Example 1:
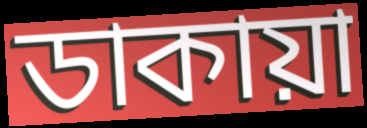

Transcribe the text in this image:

ডাকায়া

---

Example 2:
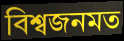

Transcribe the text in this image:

বিশ্বজনমত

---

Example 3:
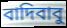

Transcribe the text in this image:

বাদিবাবু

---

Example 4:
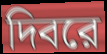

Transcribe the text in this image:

দিবরে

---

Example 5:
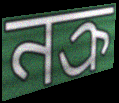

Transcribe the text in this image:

নক্র